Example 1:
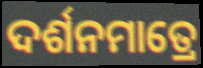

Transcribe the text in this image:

ଦର୍ଶନମାତ୍ରେ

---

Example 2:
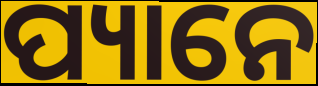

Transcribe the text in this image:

ପ୍ୟାନେ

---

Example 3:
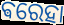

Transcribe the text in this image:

ଵରେହା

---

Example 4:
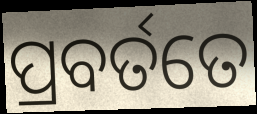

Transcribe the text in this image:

ପ୍ରବର୍ତତେ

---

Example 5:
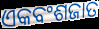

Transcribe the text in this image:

ଏକବଂଶଜାତ